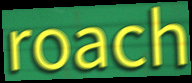
roach